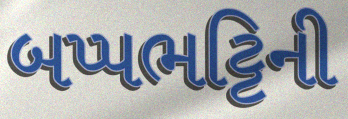
બપ્પભટ્ટિની